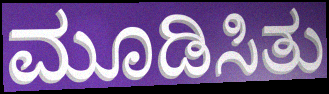
ಮೂಡಿಸಿತು